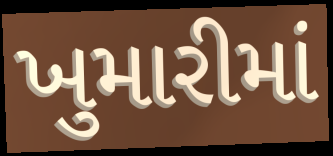
ખુમારીમાં